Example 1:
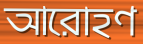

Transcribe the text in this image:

আরোহণ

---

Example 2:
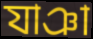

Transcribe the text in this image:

যাঞা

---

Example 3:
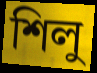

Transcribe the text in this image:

শিলু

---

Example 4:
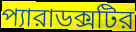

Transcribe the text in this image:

প্যারাডক্সটির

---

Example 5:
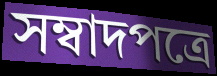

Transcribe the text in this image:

সম্বাদপত্রে